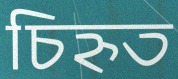
চিহ্নত